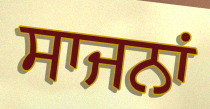
ਸਾਜਨਾਂ